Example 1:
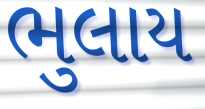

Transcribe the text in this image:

ભુલાય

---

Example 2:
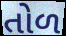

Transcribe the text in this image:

તોળ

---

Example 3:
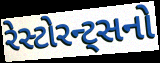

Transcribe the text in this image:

રેસ્ટોરન્ટ્સનો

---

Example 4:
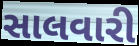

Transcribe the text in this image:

સાલવારી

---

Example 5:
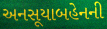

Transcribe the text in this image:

અનસૂયાબહેનની